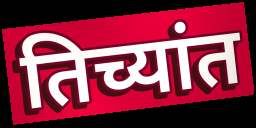
तिच्यांत